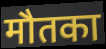
मौतका